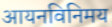
आयनविनिमय